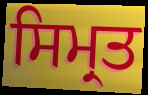
ਸਿਮ੍ਰਤ